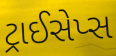
ટ્રાઈસેપ્સ